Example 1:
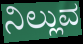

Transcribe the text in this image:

ನಿಲ್ಲುವ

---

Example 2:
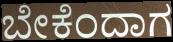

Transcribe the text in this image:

ಬೇಕೆಂದಾಗ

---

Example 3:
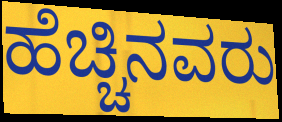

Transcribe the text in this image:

ಹೆಚ್ಚಿನವರು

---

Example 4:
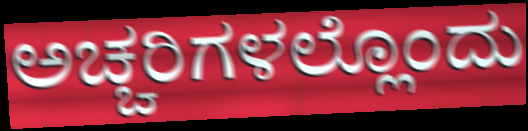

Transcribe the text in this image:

ಅಚ್ಚರಿಗಳಲ್ಲೊಂದು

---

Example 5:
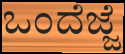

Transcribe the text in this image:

ಒಂದೆಜ್ಜೆ